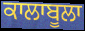
ਕਾਲਾਬੂਲਾ